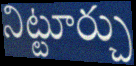
నిట్టూర్చు